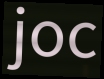
joc